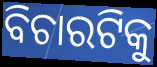
ବିଚାରଟିକୁ